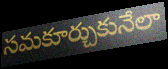
సమకూర్చుకునేలా